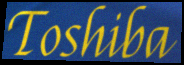
Toshiba